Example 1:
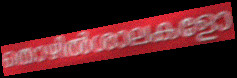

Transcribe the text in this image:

തൊഴിൽശാലകളോ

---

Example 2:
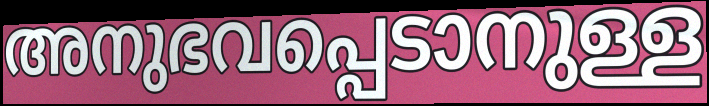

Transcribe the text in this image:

അനുഭവപ്പെടാനുള്ള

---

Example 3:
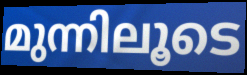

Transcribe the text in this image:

മുന്നിലൂടെ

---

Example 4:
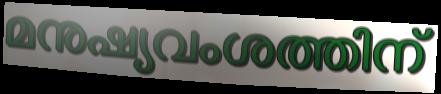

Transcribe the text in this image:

മനുഷ്യവംശത്തിന്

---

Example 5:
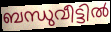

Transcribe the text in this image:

ബന്ധുവീട്ടിൽ